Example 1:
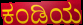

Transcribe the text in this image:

ಕಂಡಿಯ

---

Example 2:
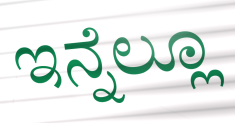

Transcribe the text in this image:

ಇನ್ನೆಲ್ಲೂ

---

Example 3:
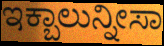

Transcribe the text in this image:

ಇಕ್ಬಾಲುನ್ನೀಸಾ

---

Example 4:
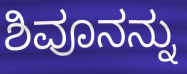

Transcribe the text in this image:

ಶಿವೂನನ್ನು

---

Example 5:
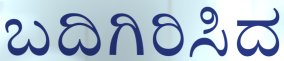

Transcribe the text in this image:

ಬದಿಗಿರಿಸಿದ